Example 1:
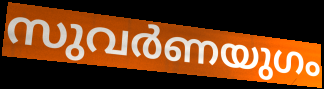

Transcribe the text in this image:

സുവർണയുഗം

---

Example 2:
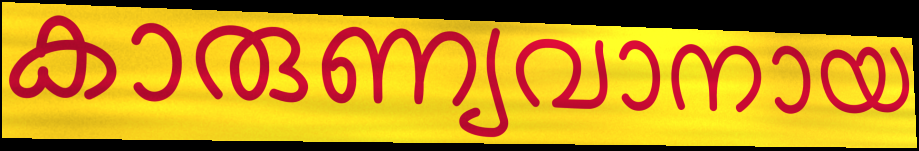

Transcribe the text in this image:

കാരുണ്യവാനായ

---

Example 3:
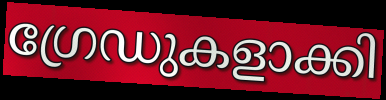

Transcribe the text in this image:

ഗ്രേഡുകളാക്കി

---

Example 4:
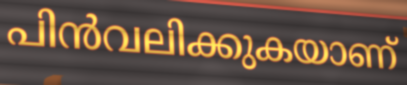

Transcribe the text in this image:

പിൻവലിക്കുകയാണ്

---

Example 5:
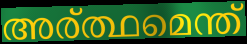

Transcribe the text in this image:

അര്ത്ഥമെന്ത്